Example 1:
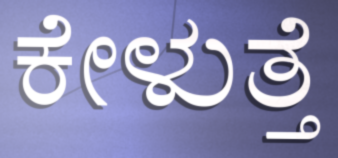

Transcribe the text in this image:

ಕೇಳುತ್ತೆ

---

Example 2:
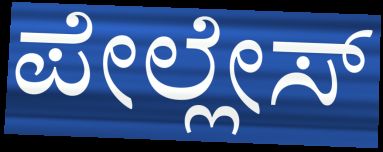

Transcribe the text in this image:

ಪೇಲ್ಲೇಸ್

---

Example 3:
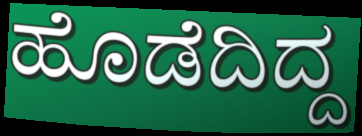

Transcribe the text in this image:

ಹೊಡೆದಿದ್ದ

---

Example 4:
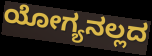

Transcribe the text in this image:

ಯೋಗ್ಯನಲ್ಲದ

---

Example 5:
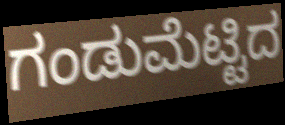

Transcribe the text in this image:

ಗಂಡುಮೆಟ್ಟಿದ